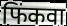
फिंकवा